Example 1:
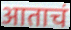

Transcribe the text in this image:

आताचं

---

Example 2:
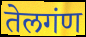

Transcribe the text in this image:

तेलगंण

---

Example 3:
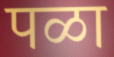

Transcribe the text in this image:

पळा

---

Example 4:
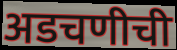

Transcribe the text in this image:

अडचणीची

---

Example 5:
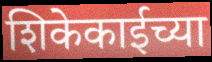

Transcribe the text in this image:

शिकेकाईच्या